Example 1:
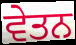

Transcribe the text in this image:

ਵੇਤਨ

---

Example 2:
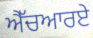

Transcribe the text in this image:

ਐੱਚਆਰਏ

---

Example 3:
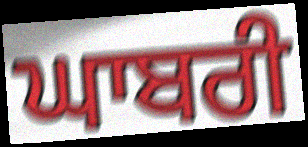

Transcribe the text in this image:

ਘਾਬਰੀ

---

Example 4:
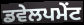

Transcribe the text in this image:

ਡਵੇਲਪਮੇਂਟ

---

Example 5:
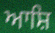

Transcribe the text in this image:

ਆਸ਼ਿ